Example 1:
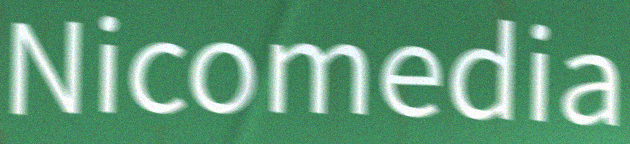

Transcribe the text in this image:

Nicomedia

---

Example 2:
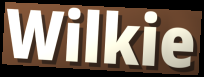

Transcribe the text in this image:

Wilkie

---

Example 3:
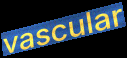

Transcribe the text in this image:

vascular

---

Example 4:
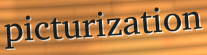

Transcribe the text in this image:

picturization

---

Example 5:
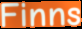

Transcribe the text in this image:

Finns